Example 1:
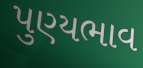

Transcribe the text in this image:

પુણ્યભાવ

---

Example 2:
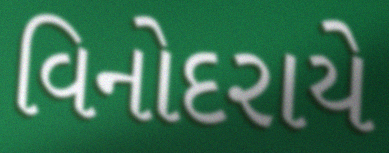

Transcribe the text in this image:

વિનોદરાયે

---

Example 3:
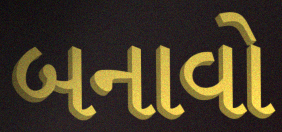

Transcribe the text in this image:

બનાવો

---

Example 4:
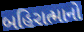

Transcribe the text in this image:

બહિરાત્માનો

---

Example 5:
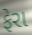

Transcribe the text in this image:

ફેરા